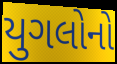
યુગલોનો